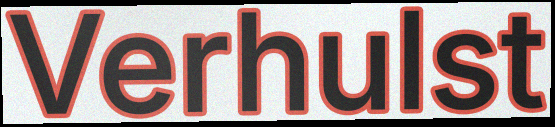
Verhulst